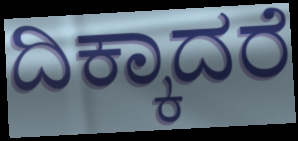
ದಿಕ್ಕಾದರೆ